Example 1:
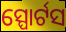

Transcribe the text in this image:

ସ୍ପୋର୍ଟସ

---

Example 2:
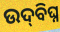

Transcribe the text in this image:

ଉଦ୍‌ବିଘ୍ନ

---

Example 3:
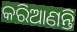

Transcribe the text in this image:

କରିଆଣନ୍ତି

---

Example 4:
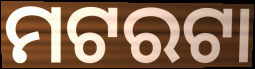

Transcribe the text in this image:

ମଟରଟା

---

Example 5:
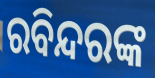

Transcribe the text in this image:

ରବିନ୍ଦରଙ୍କ